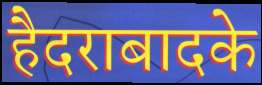
हैदराबादके